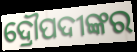
ଦ୍ରୌପଦୀଙ୍କର